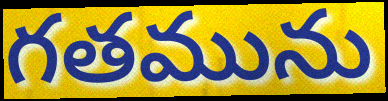
గతమును